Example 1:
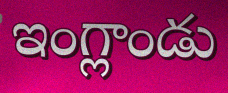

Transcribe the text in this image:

ఇంగ్లాండు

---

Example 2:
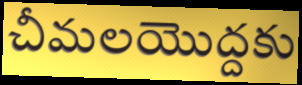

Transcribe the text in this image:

చీమలయొద్దకు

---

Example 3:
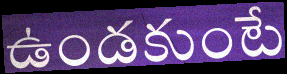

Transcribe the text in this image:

ఉండకుంటే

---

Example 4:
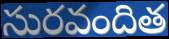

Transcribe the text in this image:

సురవందిత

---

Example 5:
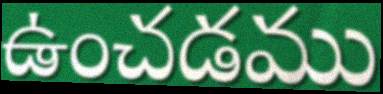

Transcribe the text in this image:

ఉంచడము